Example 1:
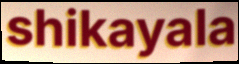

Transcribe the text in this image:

shikayala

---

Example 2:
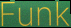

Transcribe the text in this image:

Funk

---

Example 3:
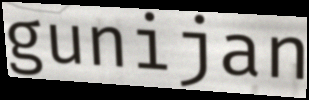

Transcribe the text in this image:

gunijan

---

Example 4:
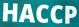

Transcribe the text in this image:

HACCP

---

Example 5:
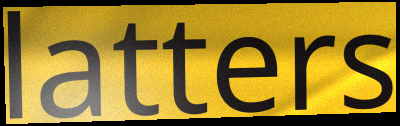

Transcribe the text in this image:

latters